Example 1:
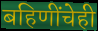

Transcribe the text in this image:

बहिणींचेही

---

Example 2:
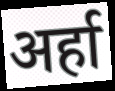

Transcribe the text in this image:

अर्हा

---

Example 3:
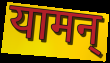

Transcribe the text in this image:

यामन्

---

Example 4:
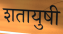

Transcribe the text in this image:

शतायुषी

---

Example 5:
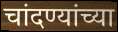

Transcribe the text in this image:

चांदण्यांच्या